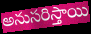
అనుసరిస్తాయి